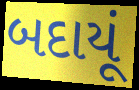
બદાયૂં